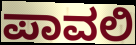
ಪಾವಲಿ